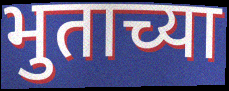
भुताच्या